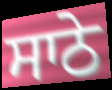
ਸਾਠੇ